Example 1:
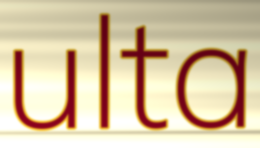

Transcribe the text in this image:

ulta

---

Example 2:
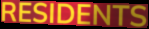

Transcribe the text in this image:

RESIDENTS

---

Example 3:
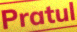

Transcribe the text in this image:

Pratul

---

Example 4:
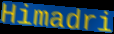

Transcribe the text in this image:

Himadri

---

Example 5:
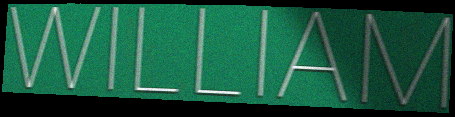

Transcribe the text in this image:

WILLIAM